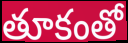
తూకంతో